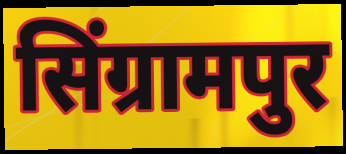
सिंग्रामपुर